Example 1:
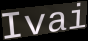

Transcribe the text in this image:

Ivai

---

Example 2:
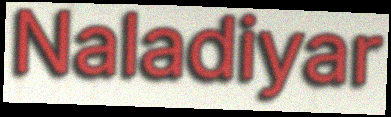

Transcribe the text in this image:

Naladiyar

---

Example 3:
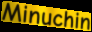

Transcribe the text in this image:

Minuchin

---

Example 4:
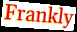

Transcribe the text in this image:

Frankly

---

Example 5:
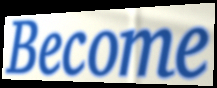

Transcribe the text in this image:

Become